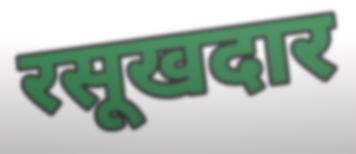
रसूखदार